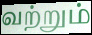
வற்றும்